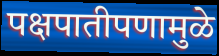
पक्षपातीपणामुळे